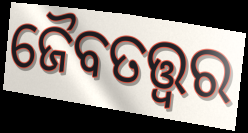
ଜୈବତତ୍ତ୍ୱର